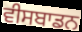
ਵੀਸਬਾਡਨ